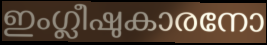
ഇംഗ്ലീഷുകാരനോ